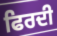
ਫਿਰਦੀ